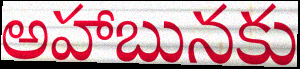
అహాబునకు